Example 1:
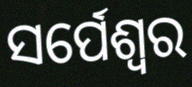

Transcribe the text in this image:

ସର୍ପେଶ୍ୱର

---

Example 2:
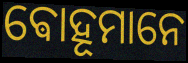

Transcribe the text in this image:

ଵୋହୂମାନେ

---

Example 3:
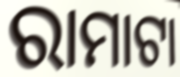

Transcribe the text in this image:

ରାମାଟା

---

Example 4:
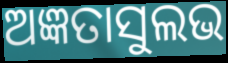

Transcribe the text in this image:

ଅଜ୍ଞତାସୁଲଭ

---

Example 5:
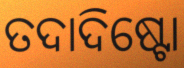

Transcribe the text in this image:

ତଦାଦିଷ୍ଟୋ